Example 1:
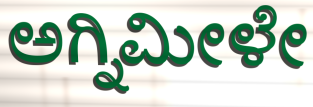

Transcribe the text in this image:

ಅಗ್ನಿಮೀಳೇ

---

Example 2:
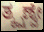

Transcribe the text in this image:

ತ್ಕ್ಷಣ್ವೇ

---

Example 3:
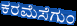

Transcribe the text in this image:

ಕರಮೆಸೆಗುಂ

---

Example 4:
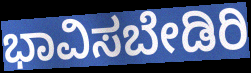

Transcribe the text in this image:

ಭಾವಿಸಬೇಡಿರಿ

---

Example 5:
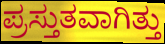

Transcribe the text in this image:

ಪ್ರಸ್ತುತವಾಗಿತ್ತು